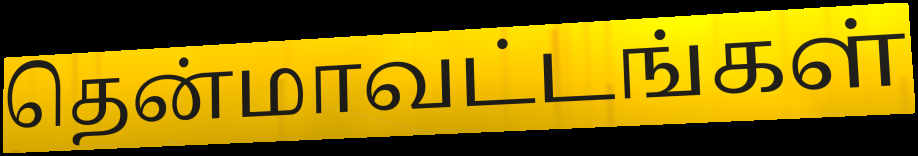
தென்மாவட்டங்கள்